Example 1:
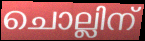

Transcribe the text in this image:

ചൊല്ലിന്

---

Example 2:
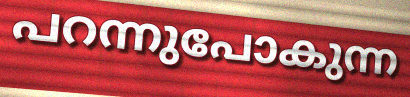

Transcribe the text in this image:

പറന്നുപോകുന്ന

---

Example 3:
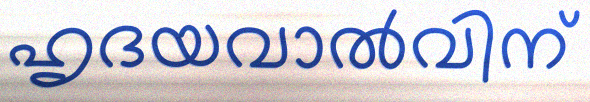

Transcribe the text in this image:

ഹൃദയവാൽവിന്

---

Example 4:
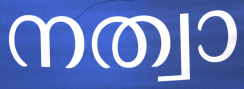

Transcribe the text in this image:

നത്വാ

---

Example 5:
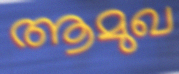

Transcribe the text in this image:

ആമുഖ